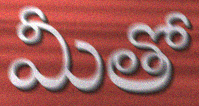
మీతో